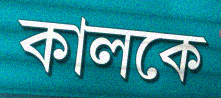
কালকে